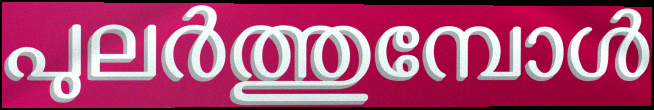
പുലർത്തുമ്പോൾ